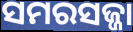
ସମରସଜ୍ଜା